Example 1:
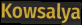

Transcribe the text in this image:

Kowsalya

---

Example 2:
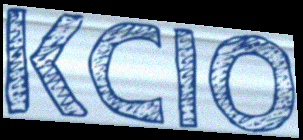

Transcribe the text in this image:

KCIO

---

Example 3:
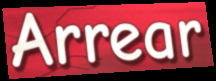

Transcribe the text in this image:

Arrear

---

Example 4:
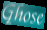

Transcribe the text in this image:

Ghose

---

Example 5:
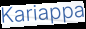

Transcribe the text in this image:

Kariappa